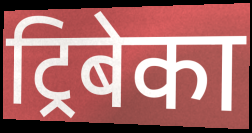
ट्रिबेका